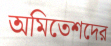
অমিতেশদের